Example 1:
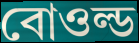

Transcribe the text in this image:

বোওল্ড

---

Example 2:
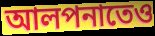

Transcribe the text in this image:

আলপনাতেও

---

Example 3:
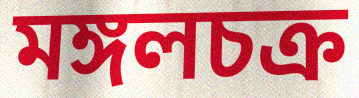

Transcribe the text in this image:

মঙ্গলচক্র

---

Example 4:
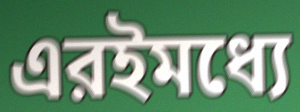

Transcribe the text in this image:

এরইমধ্যে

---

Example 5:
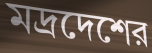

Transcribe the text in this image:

মদ্রদেশের